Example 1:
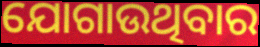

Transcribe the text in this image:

ଯୋଗାଉଥିବାର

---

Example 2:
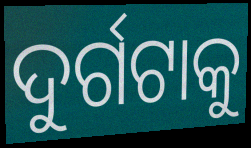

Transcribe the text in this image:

ଦୁର୍ଗଟାକୁ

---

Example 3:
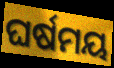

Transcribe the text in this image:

ଘର୍ଷମୟ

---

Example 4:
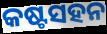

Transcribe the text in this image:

କଷ୍ଟସହନ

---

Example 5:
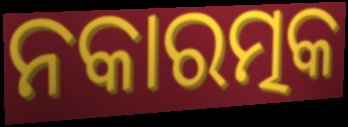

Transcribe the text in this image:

ନକାରତ୍ମକ